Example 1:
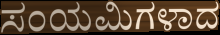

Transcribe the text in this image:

ಸಂಯಮಿಗಳಾದ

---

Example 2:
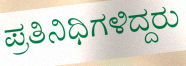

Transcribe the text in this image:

ಪ್ರತಿನಿಧಿಗಳಿದ್ದರು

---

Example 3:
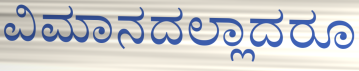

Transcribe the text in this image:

ವಿಮಾನದಲ್ಲಾದರೂ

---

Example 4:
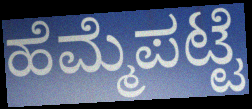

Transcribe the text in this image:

ಹೆಮ್ಮೆಪಟ್ಟೆ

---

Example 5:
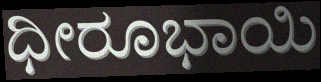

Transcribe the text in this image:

ಧೀರೂಭಾಯಿ